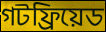
গটফ্রিয়েড